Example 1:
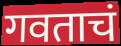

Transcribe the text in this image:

गवताचं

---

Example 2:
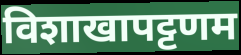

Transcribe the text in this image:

विशाखापट्टणम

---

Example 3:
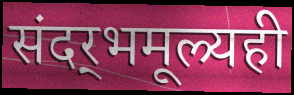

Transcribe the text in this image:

संदर्भमूल्यही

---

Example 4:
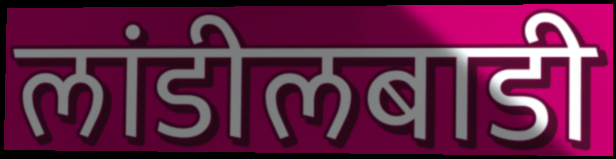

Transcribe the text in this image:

लांडीलबाडी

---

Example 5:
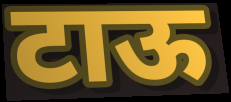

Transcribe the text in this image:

टाऊ